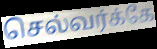
செல்வர்க்கே